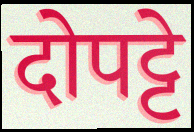
दोपट्टे